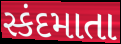
સ્કંદમાતા